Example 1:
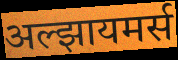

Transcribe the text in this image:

अल्झायमर्स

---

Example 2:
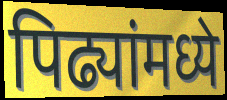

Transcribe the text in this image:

पिढ्यांमध्ये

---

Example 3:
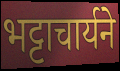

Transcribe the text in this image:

भट्टाचार्यने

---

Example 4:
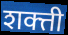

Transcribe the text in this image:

शक्त्ती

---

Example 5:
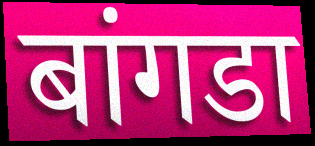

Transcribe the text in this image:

बांगडा